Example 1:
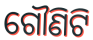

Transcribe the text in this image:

ଗୌଣିଟି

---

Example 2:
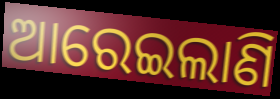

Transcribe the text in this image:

ଆରେଇଲାଣି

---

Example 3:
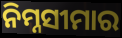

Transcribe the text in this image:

ନିମ୍ନସୀମାର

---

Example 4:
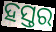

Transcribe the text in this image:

ହସ୍ତର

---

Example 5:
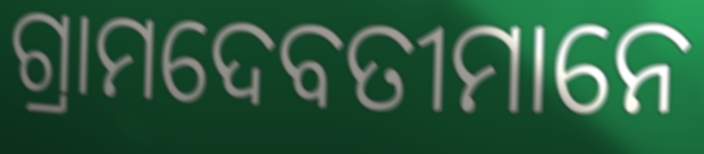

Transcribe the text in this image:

ଗ୍ରାମଦେବତୀମାନେ